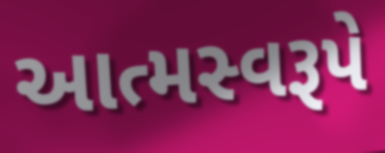
આત્મસ્વરૂપે